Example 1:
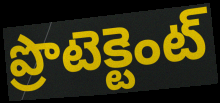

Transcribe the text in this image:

ప్రొటెక్టెంట్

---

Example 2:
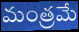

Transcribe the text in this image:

మంత్రమే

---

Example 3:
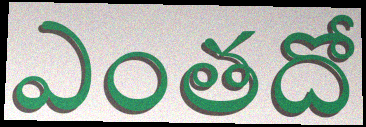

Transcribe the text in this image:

ఎంతదో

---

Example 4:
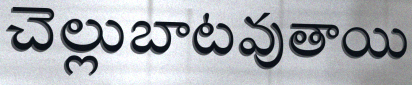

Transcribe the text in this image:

చెల్లుబాటవుతాయి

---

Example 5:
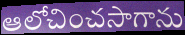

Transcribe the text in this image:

ఆలోచించసాగాను